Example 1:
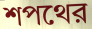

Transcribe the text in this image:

শপথের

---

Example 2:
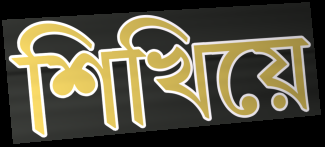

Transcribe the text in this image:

শিখিয়ে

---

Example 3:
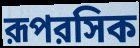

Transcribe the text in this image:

রূপরসিক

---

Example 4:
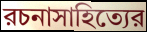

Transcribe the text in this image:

রচনাসাহিত্যের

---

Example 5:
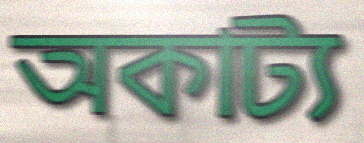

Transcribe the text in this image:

অকাট্য